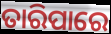
ତାରିପାରେ